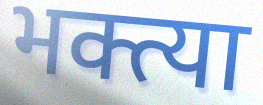
भक्त्या